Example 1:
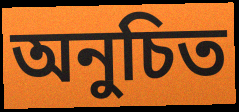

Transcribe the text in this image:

অনুচিত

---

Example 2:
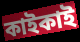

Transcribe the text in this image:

কাইকাই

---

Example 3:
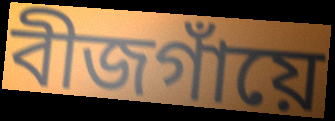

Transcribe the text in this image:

বীজগাঁয়ে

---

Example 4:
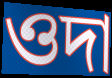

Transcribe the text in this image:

ওদা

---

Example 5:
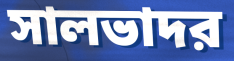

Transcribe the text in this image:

সালভাদর